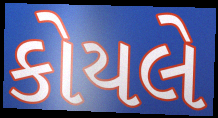
કોયલે